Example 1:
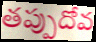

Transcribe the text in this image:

తప్పుదోవ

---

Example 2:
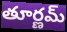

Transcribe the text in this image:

తూర్ణమ్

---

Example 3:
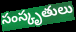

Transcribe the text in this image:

సంస్కృతులు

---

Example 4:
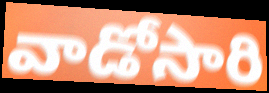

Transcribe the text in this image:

వాడోసారి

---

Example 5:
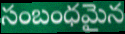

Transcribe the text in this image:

సంబంధమైన